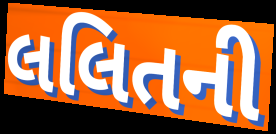
લલિતની